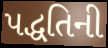
પદ્ધતિની